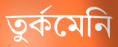
তুর্কমেনি